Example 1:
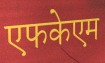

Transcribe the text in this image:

एफकेएम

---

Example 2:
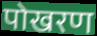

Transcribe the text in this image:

पोखरण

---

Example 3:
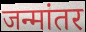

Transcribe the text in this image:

जन्मांतर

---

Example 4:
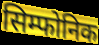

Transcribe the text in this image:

सिम्फोनिक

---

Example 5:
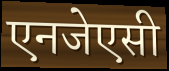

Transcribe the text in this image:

एनजेएसी